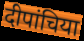
दीपांचिया